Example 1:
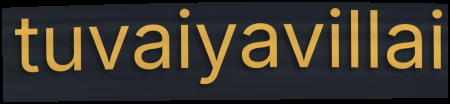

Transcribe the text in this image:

tuvaiyavillai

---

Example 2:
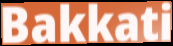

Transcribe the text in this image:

Bakkati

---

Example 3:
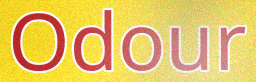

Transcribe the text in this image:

Odour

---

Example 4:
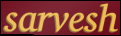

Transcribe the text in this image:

sarvesh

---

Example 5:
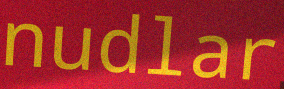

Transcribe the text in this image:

nudlar